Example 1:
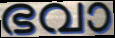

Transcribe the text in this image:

ഭവാ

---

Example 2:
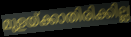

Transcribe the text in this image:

മുളയ്ക്കാതിരിക്കില്ല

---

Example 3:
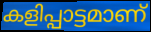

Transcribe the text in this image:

കളിപ്പാട്ടമാണ്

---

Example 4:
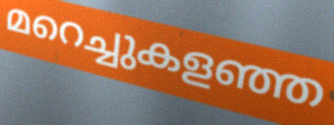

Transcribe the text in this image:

മറെച്ചുകളഞ്ഞ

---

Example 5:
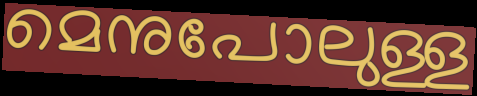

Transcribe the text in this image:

മെനുപോലുള്ള